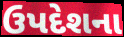
ઉપદેશના